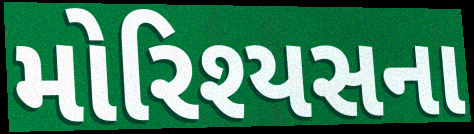
મોરિશ્યસના